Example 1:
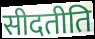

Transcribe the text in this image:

सीदतीति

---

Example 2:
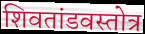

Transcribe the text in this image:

शिवतांडवस्तोत्र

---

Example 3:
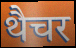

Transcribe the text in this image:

थैचर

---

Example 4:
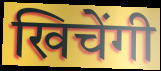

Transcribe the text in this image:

खिचेंगी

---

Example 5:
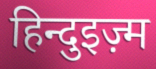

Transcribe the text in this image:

हिन्दुइज़्म